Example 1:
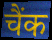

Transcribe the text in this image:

चैंक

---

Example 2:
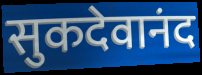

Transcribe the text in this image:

सुकदेवानंद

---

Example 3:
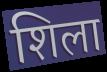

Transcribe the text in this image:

शिला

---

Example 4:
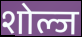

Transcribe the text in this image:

शोल्ज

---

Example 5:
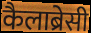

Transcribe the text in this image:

कैलाब्रेसी